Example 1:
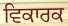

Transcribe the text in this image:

ਵਿਕਾਰਕ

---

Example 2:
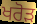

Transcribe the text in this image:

ਖਰੋੜ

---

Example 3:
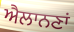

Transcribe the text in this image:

ਐਲਾਨਣਾਂ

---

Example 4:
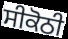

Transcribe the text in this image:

ਸੀਕੋਠੀ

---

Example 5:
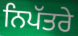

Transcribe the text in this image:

ਨਿਪੱਤਰੇ